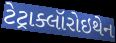
ટેટ્રાક્લૉરોઇથેન